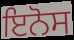
ਇਨੋਸ